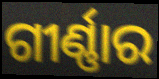
ଗୀର୍ଣ୍ଣାର